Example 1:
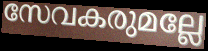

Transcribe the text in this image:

സേവകരുമല്ലേ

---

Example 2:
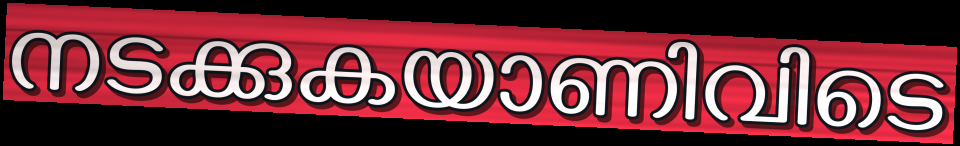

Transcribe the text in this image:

നടക്കുകയാണിവിടെ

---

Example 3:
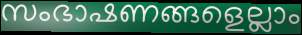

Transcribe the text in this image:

സംഭാഷണങ്ങളെല്ലാം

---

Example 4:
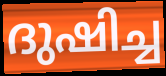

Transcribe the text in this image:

ദുഷിച്ച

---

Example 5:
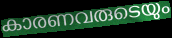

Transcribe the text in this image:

കാരണവരുടെയും